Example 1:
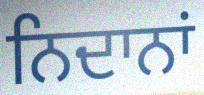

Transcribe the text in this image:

ਨਿਦਾਨਾਂ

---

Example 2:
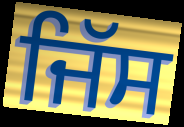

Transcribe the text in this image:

ਜਿੱਸ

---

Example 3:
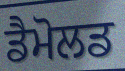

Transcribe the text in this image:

ਡੈਮੋਲਡ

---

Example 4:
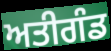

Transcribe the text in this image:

ਅਤੀਗੰਡ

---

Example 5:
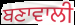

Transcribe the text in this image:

ਬਣਾਵਾਲੀ